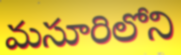
మసూరిలోని